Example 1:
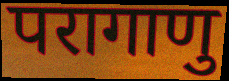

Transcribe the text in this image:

परागाणु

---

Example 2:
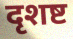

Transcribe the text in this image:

दृशष्ट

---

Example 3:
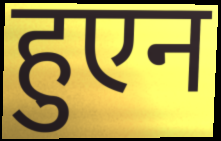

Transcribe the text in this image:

हुएन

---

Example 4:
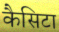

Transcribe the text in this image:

कैसिटा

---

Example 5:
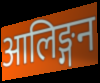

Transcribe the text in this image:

आलिङ्गन